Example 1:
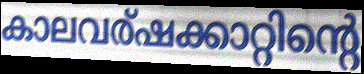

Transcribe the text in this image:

കാലവര്ഷക്കാറ്റിന്റെ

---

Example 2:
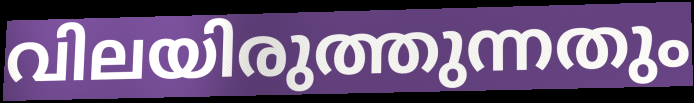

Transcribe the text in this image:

വിലയിരുത്തുന്നതും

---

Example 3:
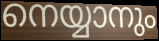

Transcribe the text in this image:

നെയ്യാനും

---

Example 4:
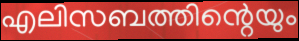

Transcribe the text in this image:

എലിസബത്തിന്റെയും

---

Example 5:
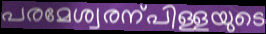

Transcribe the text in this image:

പരമേശ്വരന്പിള്ളയുടെ